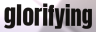
glorifying